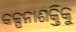
କଳ୍ପନାଶକ୍ତିକୁ